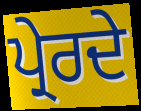
ਪ੍ਰੇਰਦੇ